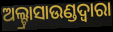
ଅଲ୍ଟ୍ରାସାଉଣ୍ଡଦ୍ୱାରା